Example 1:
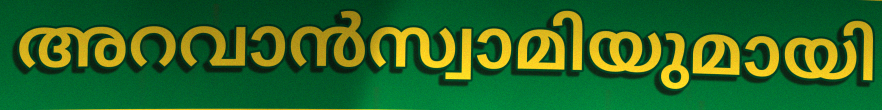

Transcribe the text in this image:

അറവാൻസ്വാമിയുമായി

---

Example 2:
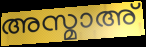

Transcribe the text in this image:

അസ്മാഅ്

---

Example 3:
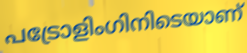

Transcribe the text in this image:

പട്രോളിംഗിനിടെയാണ്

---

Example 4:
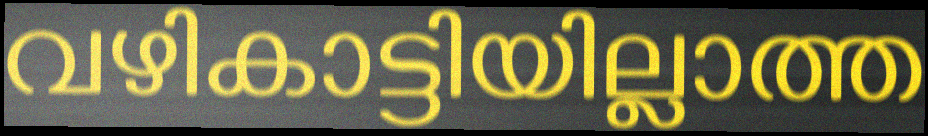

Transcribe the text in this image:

വഴികാട്ടിയില്ലാത്ത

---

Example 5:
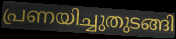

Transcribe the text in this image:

പ്രണയിച്ചുതുടങ്ങി